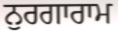
ਨੁਰਗਾਰਾਮ